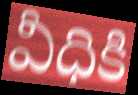
వీధికి